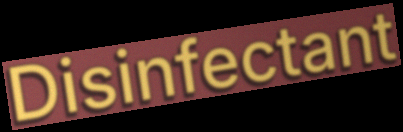
Disinfectant